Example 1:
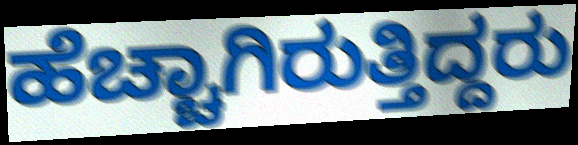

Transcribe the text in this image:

ಹೆಚ್ಚಾಗಿರುತ್ತಿದ್ದರು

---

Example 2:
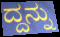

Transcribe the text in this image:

ದ್ದನ್ನು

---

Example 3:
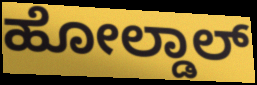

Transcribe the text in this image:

ಹೋಲ್ಡಾಲ್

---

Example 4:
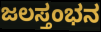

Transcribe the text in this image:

ಜಲಸ್ತಂಭನ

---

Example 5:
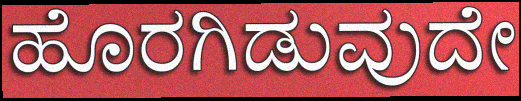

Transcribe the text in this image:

ಹೊರಗಿಡುವುದೇ